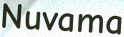
Nuvama